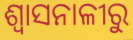
ଶ୍ୱାସନାଳୀରୁ